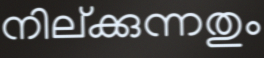
നില്ക്കുന്നതും